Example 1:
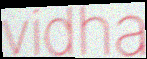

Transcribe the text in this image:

vidha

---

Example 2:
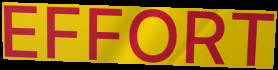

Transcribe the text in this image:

EFFORT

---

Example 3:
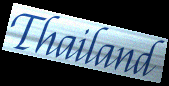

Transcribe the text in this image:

Thailand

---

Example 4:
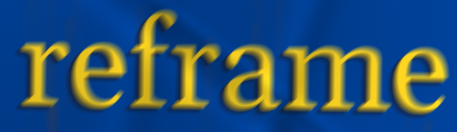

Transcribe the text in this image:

reframe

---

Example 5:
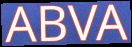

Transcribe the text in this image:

ABVA